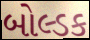
બોલ્ડક